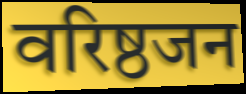
वरिष्ठजन